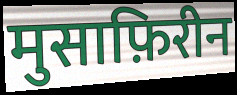
मुसाफ़िरीन